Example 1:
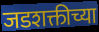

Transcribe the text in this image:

जडशक्तीच्या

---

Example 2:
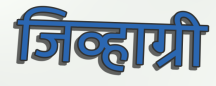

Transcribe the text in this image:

जिव्हाग्री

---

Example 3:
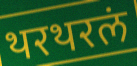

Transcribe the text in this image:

थरथरलं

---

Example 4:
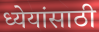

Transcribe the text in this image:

ध्येयांसाठी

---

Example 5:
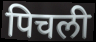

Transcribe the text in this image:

पिचली